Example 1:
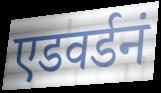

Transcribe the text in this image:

एडवर्डनं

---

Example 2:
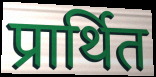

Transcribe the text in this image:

प्रार्थित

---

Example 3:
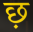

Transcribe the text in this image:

छ़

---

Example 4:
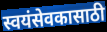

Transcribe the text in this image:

स्वयंसेवकासाठी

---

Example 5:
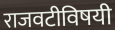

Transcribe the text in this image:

राजवटीविषयी